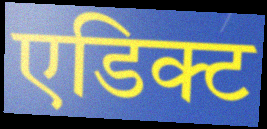
एडिक्ट